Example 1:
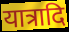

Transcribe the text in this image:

यात्रादि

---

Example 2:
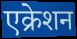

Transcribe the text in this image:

एक्रेशन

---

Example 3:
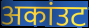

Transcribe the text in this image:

अकांउट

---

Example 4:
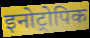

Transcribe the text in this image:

इनोट्रोपिक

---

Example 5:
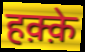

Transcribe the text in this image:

हक़्क़े